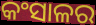
କଂସାଳର